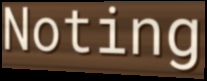
Noting